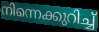
നിന്നെക്കുറിച്ച്